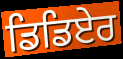
ਡਿਡਿਏਰ